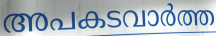
അപകടവാർത്ത